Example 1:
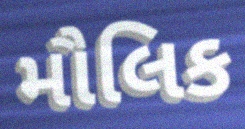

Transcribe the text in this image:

મૌલિક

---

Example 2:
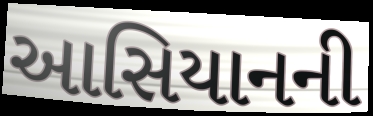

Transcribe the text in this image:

આસિયાનની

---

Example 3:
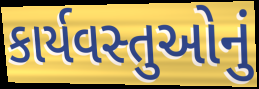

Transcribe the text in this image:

કાર્યવસ્તુઓનું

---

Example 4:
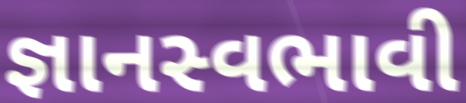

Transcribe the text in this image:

જ્ઞાનસ્વભાવી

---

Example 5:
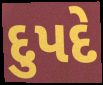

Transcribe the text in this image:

દુપદે